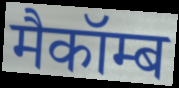
मैकॉम्ब